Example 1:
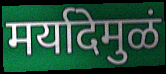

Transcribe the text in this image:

मर्यादेमुळं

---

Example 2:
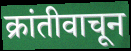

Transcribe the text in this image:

क्रांतीवाचून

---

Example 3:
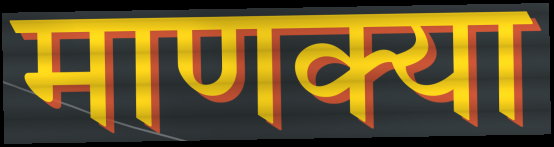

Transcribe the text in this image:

माणक्या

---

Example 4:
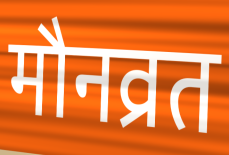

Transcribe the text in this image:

मौनव्रत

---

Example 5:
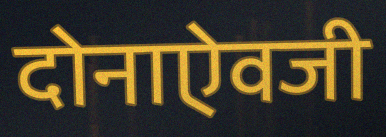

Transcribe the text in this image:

दोनाऐवजी